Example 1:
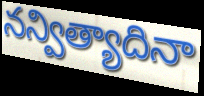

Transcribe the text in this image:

నన్విత్యాదినా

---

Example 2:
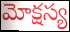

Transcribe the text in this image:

మోక్షస్య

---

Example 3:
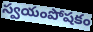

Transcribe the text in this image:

స్వయంపోషకం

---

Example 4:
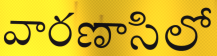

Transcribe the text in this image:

వారణాసిలో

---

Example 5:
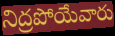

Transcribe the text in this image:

నిద్రపోయేవారు